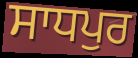
ਸਾਧਪੁਰ